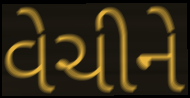
વેચીને